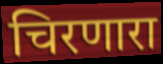
चिरणारा